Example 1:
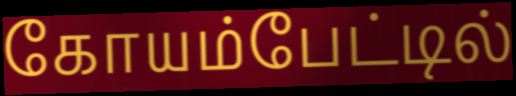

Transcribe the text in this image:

கோயம்பேட்டில்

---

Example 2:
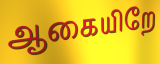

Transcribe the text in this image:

ஆகையிறே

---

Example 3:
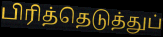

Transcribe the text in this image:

பிரித்தெடுத்துப்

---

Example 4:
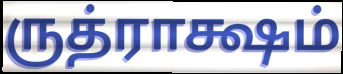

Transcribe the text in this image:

ருத்ராக்ஷம்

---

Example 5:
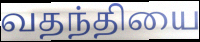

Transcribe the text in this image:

வதந்தியை